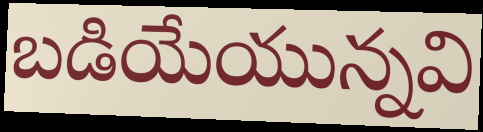
బడియేయున్నవి